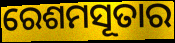
ରେଶମସୂତାର